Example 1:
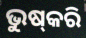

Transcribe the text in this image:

ଭୁଷ୍‌କରି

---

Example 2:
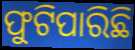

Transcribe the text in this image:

ଫୁଟିପାରିଛି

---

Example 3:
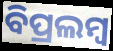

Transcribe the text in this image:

ବିପ୍ରଲମ୍ବ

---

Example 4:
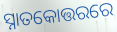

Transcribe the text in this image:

ସ୍ନାତକୋତ୍ତରରେ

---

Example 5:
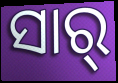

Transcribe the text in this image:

ସାର୍